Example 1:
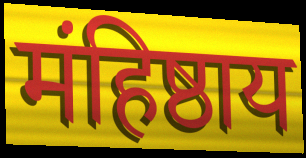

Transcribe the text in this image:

मंहिष्ठाय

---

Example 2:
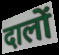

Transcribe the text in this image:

दालों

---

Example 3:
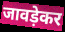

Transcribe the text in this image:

जावड़ेकर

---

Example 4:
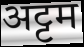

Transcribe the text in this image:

अट्टम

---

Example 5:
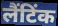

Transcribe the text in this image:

लैंटिंक